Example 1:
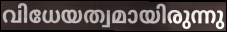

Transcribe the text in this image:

വിധേയത്വമായിരുന്നു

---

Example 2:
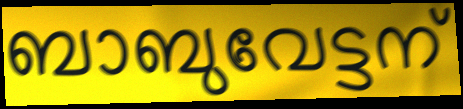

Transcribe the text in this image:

ബാബുവേട്ടന്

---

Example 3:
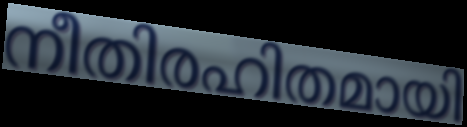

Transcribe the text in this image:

നീതിരഹിതമായി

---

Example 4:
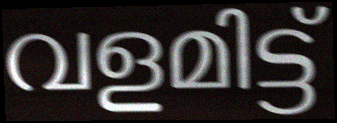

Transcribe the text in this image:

വളമിട്ട്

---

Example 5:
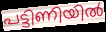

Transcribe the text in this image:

പട്ടിണിയിൽ